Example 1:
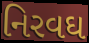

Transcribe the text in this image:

નિરવઘ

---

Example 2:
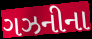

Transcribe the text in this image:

ગઝનીના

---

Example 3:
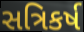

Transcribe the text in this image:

સત્રિકર્ષ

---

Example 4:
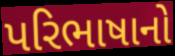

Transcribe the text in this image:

પરિભાષાનો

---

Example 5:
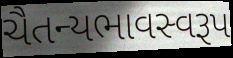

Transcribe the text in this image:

ચૈતન્યભાવસ્વરૂપ